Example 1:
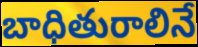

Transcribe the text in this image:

బాధితురాలినే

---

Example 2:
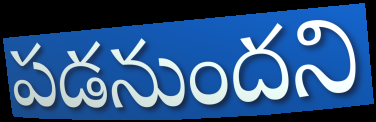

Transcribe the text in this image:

పడనుందని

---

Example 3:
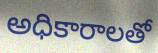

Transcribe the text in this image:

అధికారాలతో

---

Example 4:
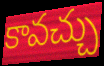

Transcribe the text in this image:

కావచ్చు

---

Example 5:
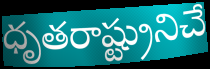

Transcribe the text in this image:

ధృతరాష్ట్రునిచే